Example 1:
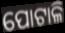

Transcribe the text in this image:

ପୋଟାଳି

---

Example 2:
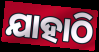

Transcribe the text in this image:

ଯାହାଠି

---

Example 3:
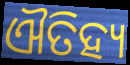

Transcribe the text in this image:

ଐତିହ୍ଯ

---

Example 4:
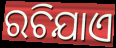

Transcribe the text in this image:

ରଚିଯାଏ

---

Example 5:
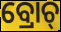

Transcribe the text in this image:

ବ୍ରୋଚ୍